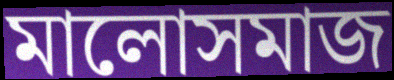
মালোসমাজ